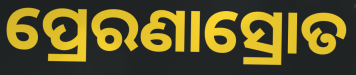
ପ୍ରେରଣାସ୍ରୋତ